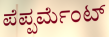
ಪೆಪ್ಪರ್ಮೆಂಟ್